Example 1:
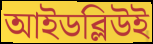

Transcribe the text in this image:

আইডব্লিউই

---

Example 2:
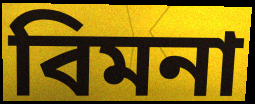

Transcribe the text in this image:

বিমনা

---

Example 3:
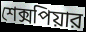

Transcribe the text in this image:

শেক্সপিয়ার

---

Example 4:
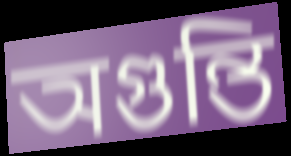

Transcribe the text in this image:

অগুন্তি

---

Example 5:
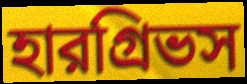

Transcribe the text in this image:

হারগ্রিভস